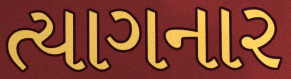
ત્યાગનાર